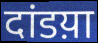
दांडय़ा